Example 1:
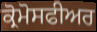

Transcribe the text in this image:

ਕ੍ਰੋਮੋਸਫੀਅਰ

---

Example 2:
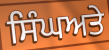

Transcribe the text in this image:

ਸਿੰਘਅਤੇ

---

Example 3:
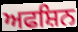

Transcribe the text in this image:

ਅਫਸ਼ਿਨ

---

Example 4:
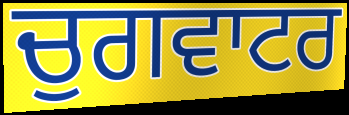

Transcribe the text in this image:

ਚੁਗਵਾਟਰ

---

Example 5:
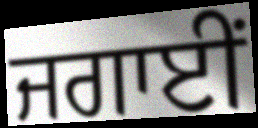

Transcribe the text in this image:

ਜਗਾਈਂ